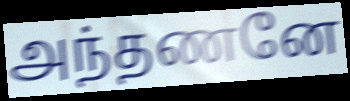
அந்தணனே